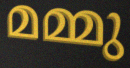
മമ്മു